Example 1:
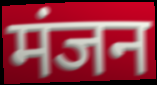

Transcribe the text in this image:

मंजन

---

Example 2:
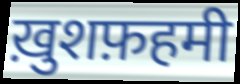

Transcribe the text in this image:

ख़ुशफ़हमी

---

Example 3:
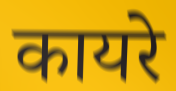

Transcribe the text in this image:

कायरे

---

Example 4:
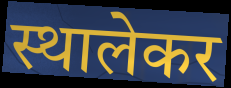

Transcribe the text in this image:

स्थालेकर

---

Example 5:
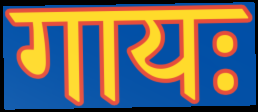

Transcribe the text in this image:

गायः